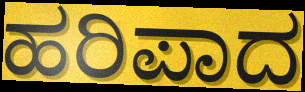
ಹರಿಪಾದ